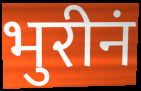
भुरीनं